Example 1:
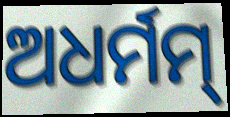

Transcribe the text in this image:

ଅଧର୍ମମ୍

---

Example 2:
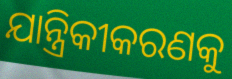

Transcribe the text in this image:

ଯାନ୍ତ୍ରିକୀକରଣକୁ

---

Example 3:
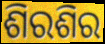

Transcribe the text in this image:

ଶିରଶିର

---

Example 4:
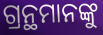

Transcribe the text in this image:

ଗ୍ରନ୍ଥମାନଙ୍କୁ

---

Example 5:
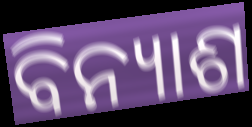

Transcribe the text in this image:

ବିନ୍ୟାଶ